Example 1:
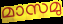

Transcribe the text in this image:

മാസമു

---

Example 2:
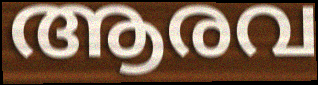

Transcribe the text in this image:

ആരവ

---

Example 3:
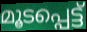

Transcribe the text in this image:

മൂടപ്പെട്ട്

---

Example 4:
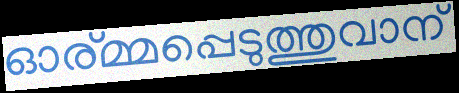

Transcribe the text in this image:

ഓര്മ്മപ്പെടുത്തുവാന്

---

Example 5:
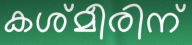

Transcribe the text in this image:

കശ്മീരിന്